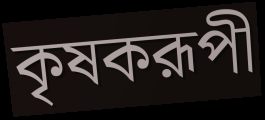
কৃষকরূপী